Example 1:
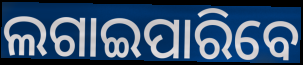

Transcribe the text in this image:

ଲଗାଇପାରିବେ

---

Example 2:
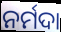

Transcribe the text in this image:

ନର୍ମଦା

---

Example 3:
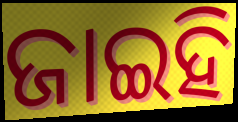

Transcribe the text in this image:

ଜାଇହି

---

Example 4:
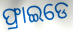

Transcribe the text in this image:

ଫ୍ରାଇଡେ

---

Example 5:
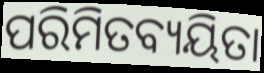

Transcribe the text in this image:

ପରିମିତବ୍ୟୟିତା